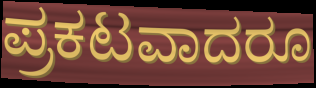
ಪ್ರಕಟವಾದರೂ